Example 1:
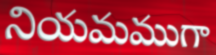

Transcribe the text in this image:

నియమముగా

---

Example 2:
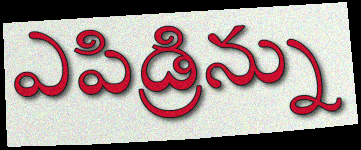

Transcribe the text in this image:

ఎపిడ్రిన్ను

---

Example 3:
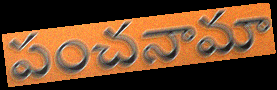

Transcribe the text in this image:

పంచనామా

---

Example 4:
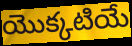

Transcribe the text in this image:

యొక్కటియే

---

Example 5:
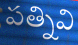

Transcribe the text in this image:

పత్నివి